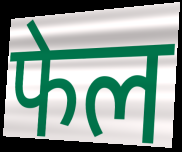
फेल